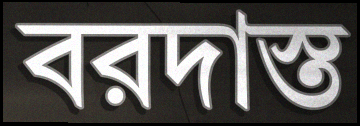
বরদাস্ত